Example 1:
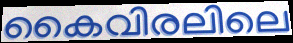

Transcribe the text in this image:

കൈവിരലിലെ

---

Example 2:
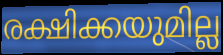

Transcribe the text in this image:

രക്ഷിക്കയുമില്ല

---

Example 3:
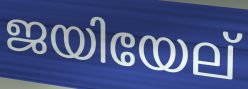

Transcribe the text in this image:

ജയിയേല്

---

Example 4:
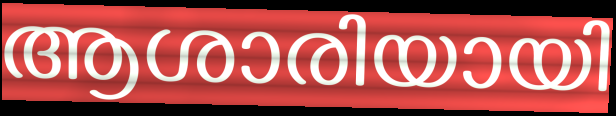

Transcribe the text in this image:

ആശാരിയായി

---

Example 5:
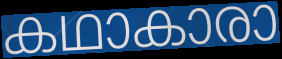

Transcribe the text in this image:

കഥാകാരാ